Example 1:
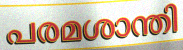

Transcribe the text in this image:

പരമശാന്തി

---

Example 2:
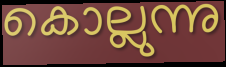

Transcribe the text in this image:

കൊല്ലുന്നു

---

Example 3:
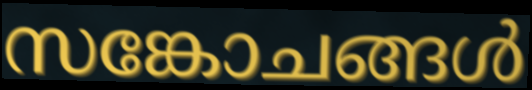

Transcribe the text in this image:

സങ്കോചങ്ങൾ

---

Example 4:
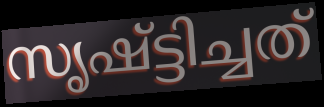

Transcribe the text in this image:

സൃഷ്ട്ടിച്ചത്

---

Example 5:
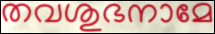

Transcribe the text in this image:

തവശുഭനാമേ